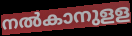
നൽകാനുളള